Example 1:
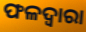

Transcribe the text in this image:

ଫଳଦ୍ୱାରା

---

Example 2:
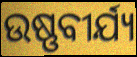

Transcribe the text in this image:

ଉଷ୍ଣବୀର୍ଯ୍ୟ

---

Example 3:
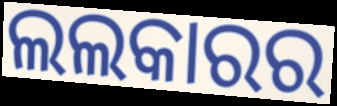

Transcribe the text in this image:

ଲଲକାରର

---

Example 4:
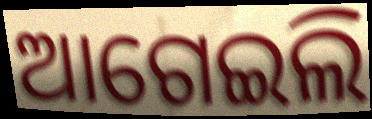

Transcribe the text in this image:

ଆଗେଇଲି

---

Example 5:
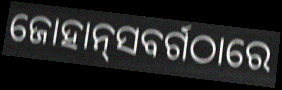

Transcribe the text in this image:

ଜୋହାନ୍‌ସବର୍ଗଠାରେ